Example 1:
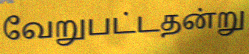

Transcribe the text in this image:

வேறுபட்டதன்று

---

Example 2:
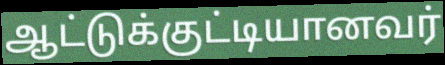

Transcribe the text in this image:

ஆட்டுக்குட்டியானவர்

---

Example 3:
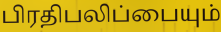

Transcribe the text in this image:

பிரதிபலிப்பையும்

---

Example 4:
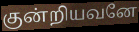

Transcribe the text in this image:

குன்றியவனே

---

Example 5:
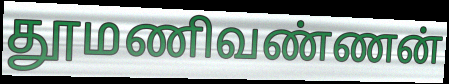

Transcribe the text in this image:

தூமணிவண்ணன்